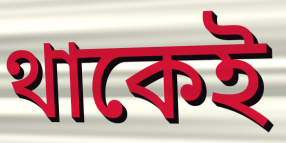
থাকেই